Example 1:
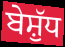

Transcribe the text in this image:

ਬੇਸ਼ੁੱਧ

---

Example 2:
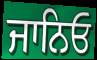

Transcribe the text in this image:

ਜਾਨਿਓ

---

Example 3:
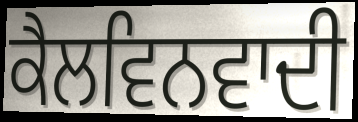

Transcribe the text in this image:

ਕੈਲਵਿਨਵਾਦੀ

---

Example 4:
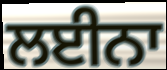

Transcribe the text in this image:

ਲਈਨਾ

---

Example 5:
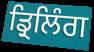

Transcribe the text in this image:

ਡ੍ਰਿਲਿੰਗ